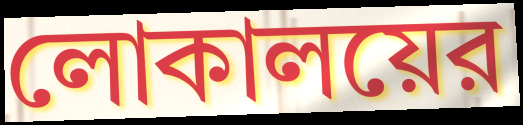
লোকালয়ের